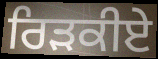
ਰਿੜਕੀਏ